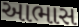
આભાસ